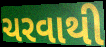
ચરવાથી